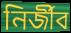
নির্জীব